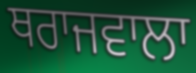
ਥਰਾਜਵਾਲਾ